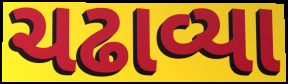
ચઢાવ્યા